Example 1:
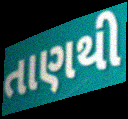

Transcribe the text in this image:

તાણથી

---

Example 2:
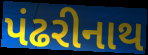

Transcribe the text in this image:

પંઢરીનાથ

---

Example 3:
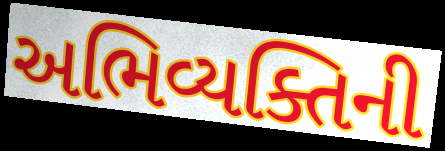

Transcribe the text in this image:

અભિવ્યક્તિની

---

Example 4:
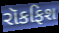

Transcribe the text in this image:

રૉકફિશ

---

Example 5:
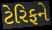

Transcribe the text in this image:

ટેરિફને